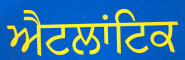
ਐਟਲਾਂਟਿਕ